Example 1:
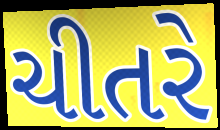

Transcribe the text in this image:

ચીતરે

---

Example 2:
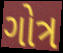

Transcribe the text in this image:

ગોત્ર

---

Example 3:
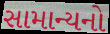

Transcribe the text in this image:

સામાન્યનો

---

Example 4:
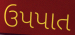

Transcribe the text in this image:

ઉપપાત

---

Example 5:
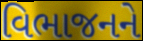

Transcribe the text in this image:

વિભાજનને